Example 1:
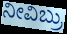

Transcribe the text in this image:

ನೀವಿಬ್ರು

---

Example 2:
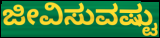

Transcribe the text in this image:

ಜೀವಿಸುವಷ್ಟು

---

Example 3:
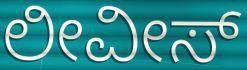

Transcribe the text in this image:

ಲೀವೀಸ್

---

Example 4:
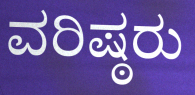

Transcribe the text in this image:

ವರಿಷ್ಠರು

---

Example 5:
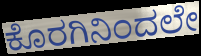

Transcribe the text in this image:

ಕೊರಗಿನಿಂದಲೇ